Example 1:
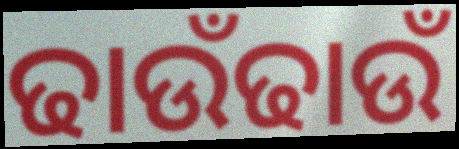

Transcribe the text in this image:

ଢାଉଁଢାଉଁ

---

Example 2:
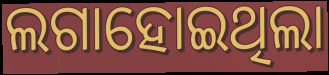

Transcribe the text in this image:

ଲଗାହୋଇଥିଲା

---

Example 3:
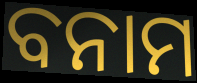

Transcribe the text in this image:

ବନାମ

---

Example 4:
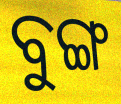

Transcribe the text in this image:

ବୁଙ୍ଗ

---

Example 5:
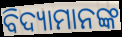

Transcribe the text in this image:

ବିଦ୍ୟାମାନଙ୍କ